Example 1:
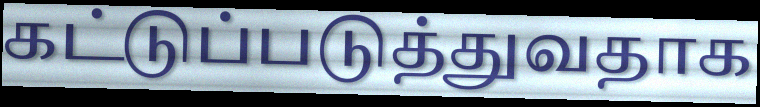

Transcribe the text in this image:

கட்டுப்படுத்துவதாக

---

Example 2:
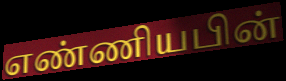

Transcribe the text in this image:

எண்ணியபின்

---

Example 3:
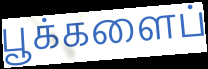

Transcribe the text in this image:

பூக்களைப்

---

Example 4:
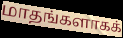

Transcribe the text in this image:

மாதங்களாகக்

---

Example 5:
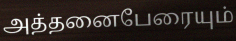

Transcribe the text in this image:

அத்தனைபேரையும்